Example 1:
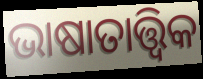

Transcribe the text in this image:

ଭାଷାତାତ୍ତ୍ୱିକ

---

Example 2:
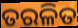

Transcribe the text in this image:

ତରଳିତ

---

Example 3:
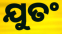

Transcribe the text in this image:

ଯୁତଂ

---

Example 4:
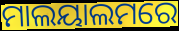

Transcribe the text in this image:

ମାଲୟାଲମରେ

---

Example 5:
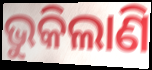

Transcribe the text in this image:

ଭୁକିଲାଣି